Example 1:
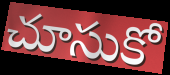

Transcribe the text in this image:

చూసుకో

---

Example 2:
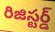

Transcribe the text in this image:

రిజిస్టర్డ్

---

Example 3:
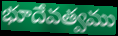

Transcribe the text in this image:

భూదేవత్వము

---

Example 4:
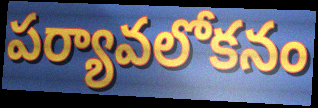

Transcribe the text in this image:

పర్యావలోకనం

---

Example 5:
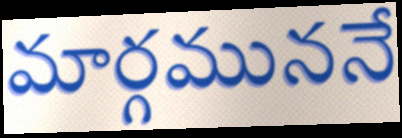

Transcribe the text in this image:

మార్గముననే